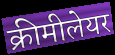
क्रीमीलेयर